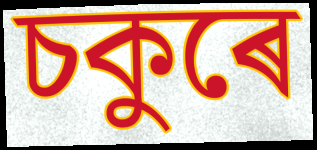
চকুৰে